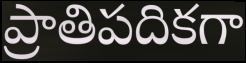
ప్రాతిపదికగా